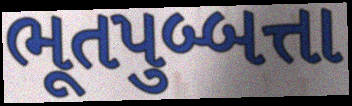
ભૂતપુબ્બત્તા